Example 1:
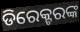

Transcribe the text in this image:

ଡିରେକ୍ଟରଙ୍କ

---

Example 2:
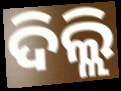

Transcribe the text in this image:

ଦିଲ୍ଲି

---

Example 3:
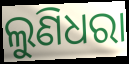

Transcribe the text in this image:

ଲୁଣିଧରା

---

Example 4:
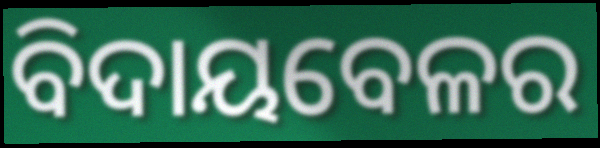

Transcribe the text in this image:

ବିଦାୟବେଳର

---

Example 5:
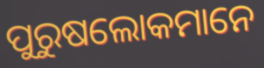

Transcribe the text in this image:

ପୁରୁଷଲୋକମାନେ